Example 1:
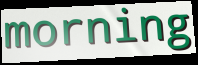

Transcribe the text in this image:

morning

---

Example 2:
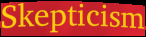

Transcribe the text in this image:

Skepticism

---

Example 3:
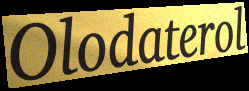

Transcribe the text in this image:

Olodaterol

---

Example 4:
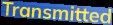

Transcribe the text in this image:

Transmitted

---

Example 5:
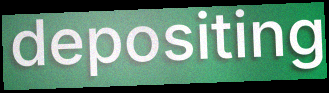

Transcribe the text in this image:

depositing